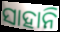
ସାହାନି